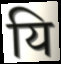
यि